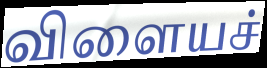
விளையச்